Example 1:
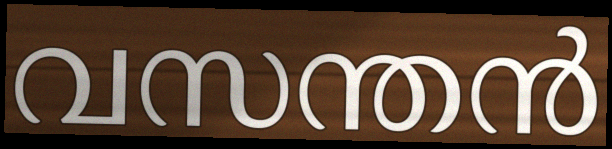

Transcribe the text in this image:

വസന്തൻ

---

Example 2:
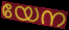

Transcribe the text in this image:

യേന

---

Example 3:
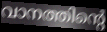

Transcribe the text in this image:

വാനത്തിന്റെ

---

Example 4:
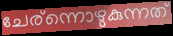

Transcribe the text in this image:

ചേര്ന്നൊഴുകുന്നത്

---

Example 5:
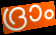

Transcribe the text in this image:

ദ്രാം